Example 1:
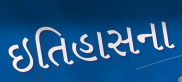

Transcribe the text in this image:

ઇતિહાસના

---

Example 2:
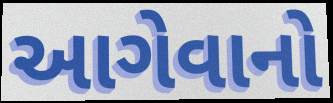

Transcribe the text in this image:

આગેવાનો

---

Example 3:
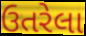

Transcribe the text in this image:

ઉતરેલા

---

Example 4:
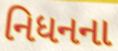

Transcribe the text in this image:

નિધનના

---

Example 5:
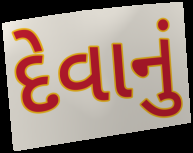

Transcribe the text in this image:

દેવાનું